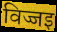
विज्जइ